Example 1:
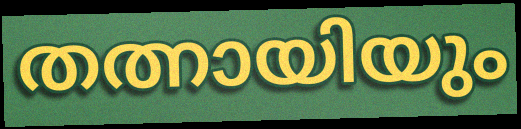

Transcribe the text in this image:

തത്നായിയും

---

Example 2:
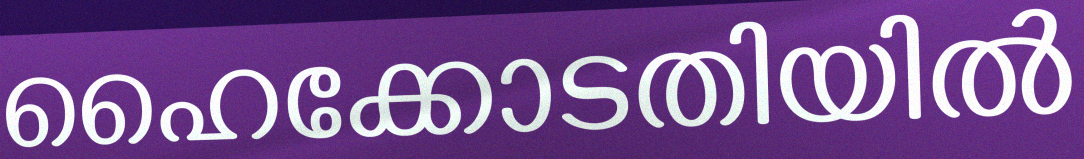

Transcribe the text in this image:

ഹൈക്കോടതിയിൽ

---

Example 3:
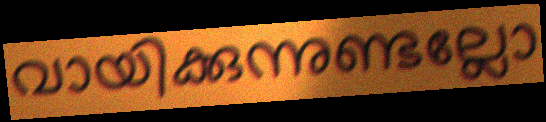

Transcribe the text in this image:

വായിക്കുന്നുണ്ടല്ലോ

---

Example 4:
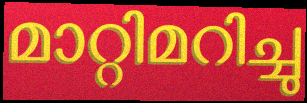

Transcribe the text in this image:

മാറ്റിമറിച്ചു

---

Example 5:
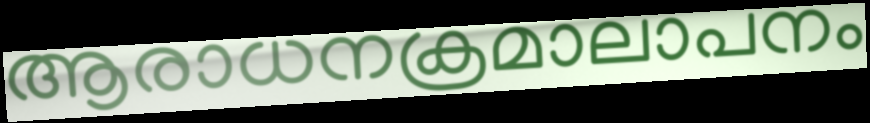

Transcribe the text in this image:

ആരാധനക്രമാലാപനം